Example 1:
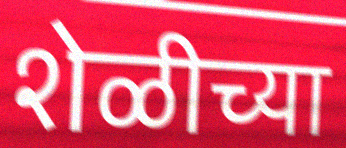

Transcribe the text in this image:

शेळीच्या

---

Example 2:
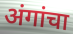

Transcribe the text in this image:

अंगांचा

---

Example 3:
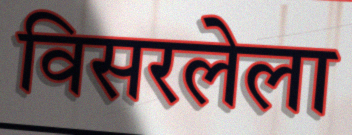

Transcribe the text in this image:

विसरलेला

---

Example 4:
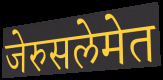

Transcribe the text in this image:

जेरुसलेमेत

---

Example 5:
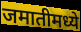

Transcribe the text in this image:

जमातीमध्ये